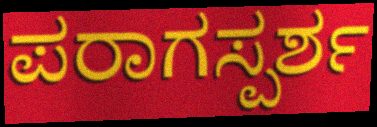
ಪರಾಗಸ್ಪರ್ಶ